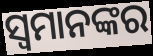
ସ୍ୱମାନଙ୍କର